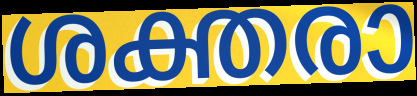
ശക്തരാ